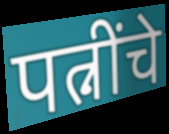
पत्नींचे